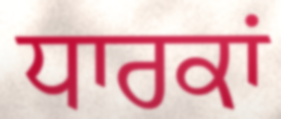
ਧਾਰਕਾਂ